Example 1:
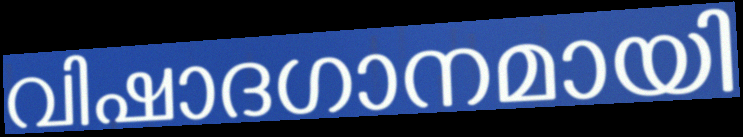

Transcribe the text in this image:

വിഷാദഗാനമായി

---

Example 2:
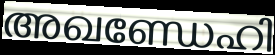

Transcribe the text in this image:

അഖണ്ഡേഹി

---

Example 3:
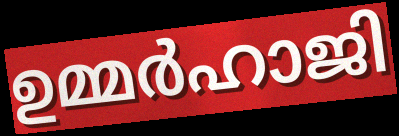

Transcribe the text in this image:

ഉമ്മർഹാജി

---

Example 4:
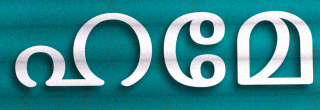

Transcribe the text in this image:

ഹമേ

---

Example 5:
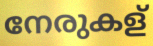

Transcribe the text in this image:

നേരുകള്